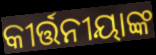
କୀର୍ତ୍ତନୀୟାଙ୍କ